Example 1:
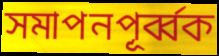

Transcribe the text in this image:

সমাপনপূর্ব্বক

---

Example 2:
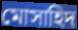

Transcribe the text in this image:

মোসাহিদ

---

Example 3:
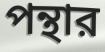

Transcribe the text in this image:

পন্থার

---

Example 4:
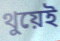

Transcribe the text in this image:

থুয়েই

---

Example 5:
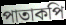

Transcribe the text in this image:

পাতাকপি